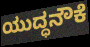
ಯುದ್ಧನೌಕೆ